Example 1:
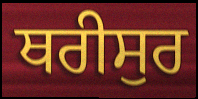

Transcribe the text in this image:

ਥਰੀਸੁਰ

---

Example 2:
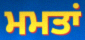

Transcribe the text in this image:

ਮਮਤਾਂ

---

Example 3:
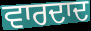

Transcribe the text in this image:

ਵਾਰਦਾਦ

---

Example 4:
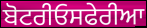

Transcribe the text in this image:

ਬੋਟਰੀਓਸਫੇਰੀਆ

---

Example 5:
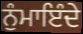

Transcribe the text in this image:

ਨੁੰਮਾਇੰਦੇ